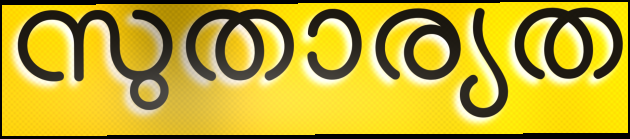
സുതാര്യത